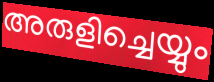
അരുളിച്ചെയ്യും